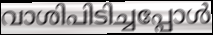
വാശിപിടിച്ചപ്പോൾ